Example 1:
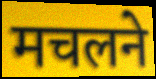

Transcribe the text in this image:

मचलने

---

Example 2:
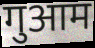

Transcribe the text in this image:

गुआम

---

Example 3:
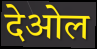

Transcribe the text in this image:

देओल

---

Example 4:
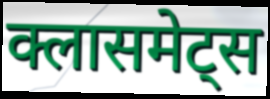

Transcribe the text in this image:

क्लासमेट्स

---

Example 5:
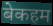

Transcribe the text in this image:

बेकहम